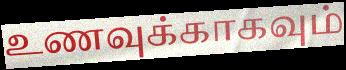
உணவுக்காகவும்